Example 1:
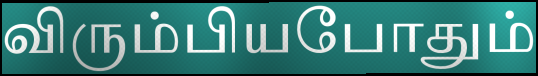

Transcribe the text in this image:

விரும்பியபோதும்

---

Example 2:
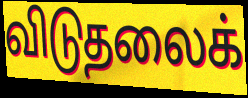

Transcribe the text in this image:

விடுதலைக்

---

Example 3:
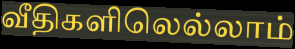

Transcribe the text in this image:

வீதிகளிலெல்லாம்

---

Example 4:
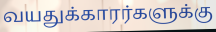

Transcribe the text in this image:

வயதுக்காரர்களுக்கு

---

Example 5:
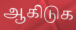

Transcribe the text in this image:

ஆகிடுக